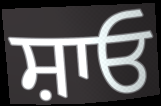
ਸ਼ਾਓ